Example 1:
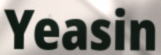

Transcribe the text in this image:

Yeasin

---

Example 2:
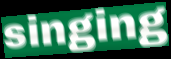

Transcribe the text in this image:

singing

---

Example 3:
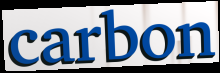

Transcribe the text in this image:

carbon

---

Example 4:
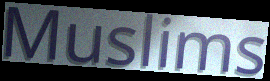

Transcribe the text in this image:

Muslims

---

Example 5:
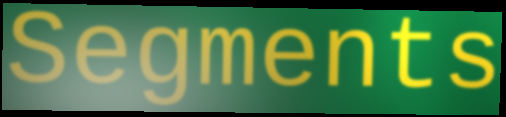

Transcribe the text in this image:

Segments